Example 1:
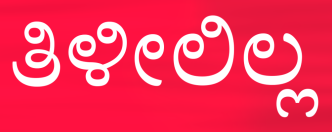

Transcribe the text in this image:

ತಿಳೀಲಿಲ್ಲ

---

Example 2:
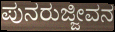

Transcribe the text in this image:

ಪುನರುಜ್ಜೀವನ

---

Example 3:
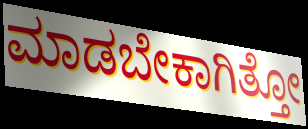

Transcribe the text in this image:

ಮಾಡಬೇಕಾಗಿತ್ತೋ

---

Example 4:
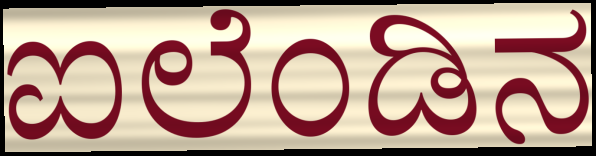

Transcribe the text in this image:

ಐಲೆಂಡಿನ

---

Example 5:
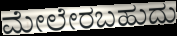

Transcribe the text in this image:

ಮೇಲೇರಬಹುದು